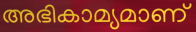
അഭികാമ്യമാണ്